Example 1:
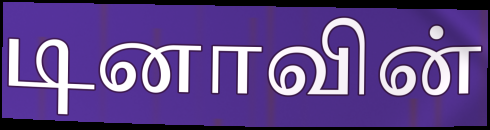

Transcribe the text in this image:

டினாவின்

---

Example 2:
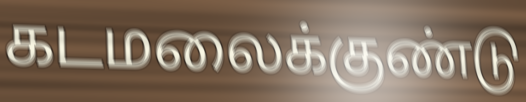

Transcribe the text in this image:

கடமலைக்குண்டு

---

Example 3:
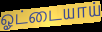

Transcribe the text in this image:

ஓட்டையாய்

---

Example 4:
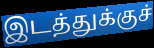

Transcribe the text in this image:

இடத்துக்குச்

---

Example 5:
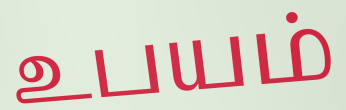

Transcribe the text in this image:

உபயம்